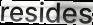
resides